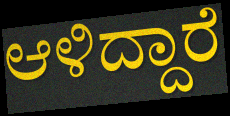
ಆಳಿದ್ದಾರೆ